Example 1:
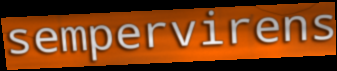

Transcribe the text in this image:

sempervirens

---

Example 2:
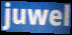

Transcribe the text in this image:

juwel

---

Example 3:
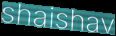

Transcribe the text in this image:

shaishav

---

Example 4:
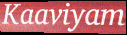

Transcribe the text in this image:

Kaaviyam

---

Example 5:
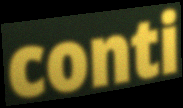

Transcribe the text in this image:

conti